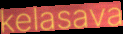
kelasava